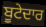
ਬੂਟੇਦਾਰ